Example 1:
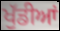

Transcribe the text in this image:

ਖੁੱਡੀਆਂ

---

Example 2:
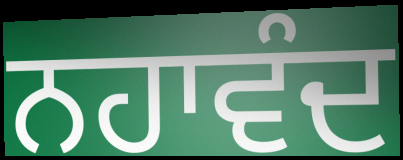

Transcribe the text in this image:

ਨਹਾਵੰਦ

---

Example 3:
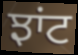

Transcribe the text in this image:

ਝਾਂਟ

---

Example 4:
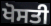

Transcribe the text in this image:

ਖੋਸਤੀ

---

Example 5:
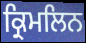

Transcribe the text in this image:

ਕ੍ਰਿਮਲਿਨ